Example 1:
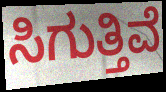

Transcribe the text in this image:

ಸಿಗುತ್ತಿವೆ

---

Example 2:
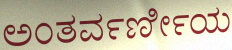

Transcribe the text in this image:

ಅಂತರ್ವರ್ಣೀಯ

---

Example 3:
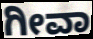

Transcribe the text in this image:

ಗೀವಾ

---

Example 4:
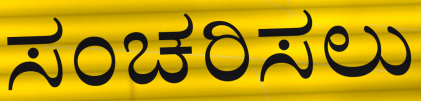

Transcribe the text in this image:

ಸಂಚರಿಸಲು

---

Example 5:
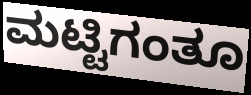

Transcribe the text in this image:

ಮಟ್ಟಿಗಂತೂ